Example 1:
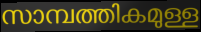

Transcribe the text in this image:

സാമ്പത്തികമുള്ള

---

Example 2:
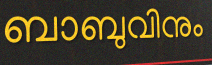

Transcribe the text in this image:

ബാബുവിനും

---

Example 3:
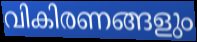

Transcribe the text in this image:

വികിരണങ്ങളും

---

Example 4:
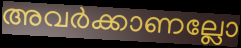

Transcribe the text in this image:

അവർക്കാണല്ലോ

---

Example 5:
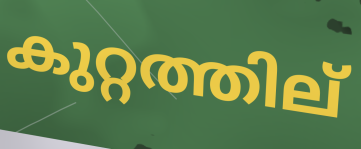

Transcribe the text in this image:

കുറ്റത്തില്